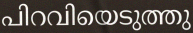
പിറവിയെടുത്തു